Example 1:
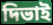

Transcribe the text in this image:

দিভাই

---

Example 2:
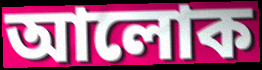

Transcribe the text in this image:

আলোক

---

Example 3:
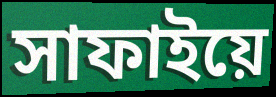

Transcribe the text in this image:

সাফাইয়ে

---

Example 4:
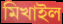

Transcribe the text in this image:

মিখাইল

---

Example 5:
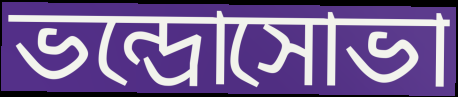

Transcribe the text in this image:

ভন্দ্রোসোভা